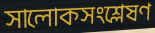
সালোকসংশ্লেষণ